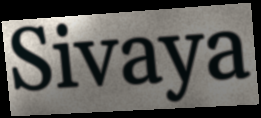
Sivaya